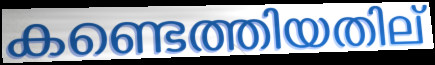
കണ്ടെത്തിയതില്